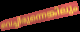
വെച്ചിരുന്നെങ്കിലും